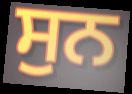
ਸੁਨ